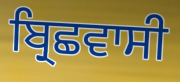
ਬ੍ਰਿਛਵਾਸੀ